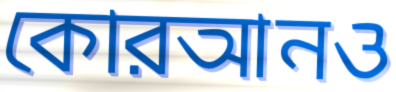
কোরআনও